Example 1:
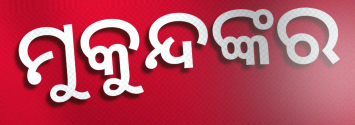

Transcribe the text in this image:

ମୁକୁନ୍ଦଙ୍କର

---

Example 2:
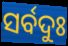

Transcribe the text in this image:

ସର୍ବଦୁଃ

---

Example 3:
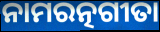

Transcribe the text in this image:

ନାମରତ୍ନଗୀତା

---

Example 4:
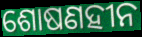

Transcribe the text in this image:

ଶୋଷଣହୀନ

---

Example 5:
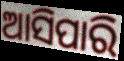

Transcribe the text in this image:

ଆସିପାରି